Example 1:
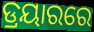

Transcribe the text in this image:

ଡ୍ରୟାରରେ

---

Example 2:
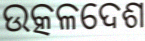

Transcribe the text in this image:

ଉତ୍କଳଦେଶ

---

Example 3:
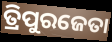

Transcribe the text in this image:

ତ୍ରିପୁରଜେତା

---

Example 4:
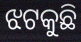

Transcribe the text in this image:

ଝଟକୁଛି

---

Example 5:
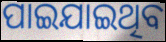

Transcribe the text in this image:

ପାଇଯାଇଥିବ